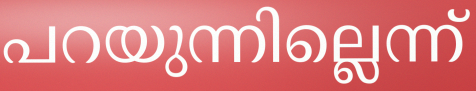
പറയുന്നില്ലെന്ന്